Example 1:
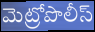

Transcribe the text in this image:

మెట్రోపొలీస్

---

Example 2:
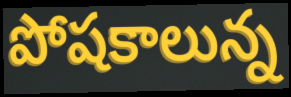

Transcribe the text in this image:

పోషకాలున్న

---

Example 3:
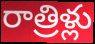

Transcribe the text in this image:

రాత్రిళ్లు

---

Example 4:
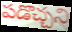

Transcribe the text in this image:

పడొచ్చని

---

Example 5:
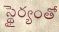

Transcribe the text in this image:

స్థైర్యంతో